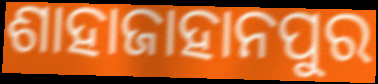
ଶାହାଜାହାନପୁର